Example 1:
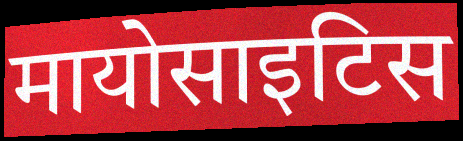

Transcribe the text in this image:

मायोसाइटिस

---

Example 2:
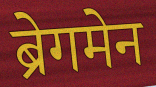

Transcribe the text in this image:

ब्रेगमेन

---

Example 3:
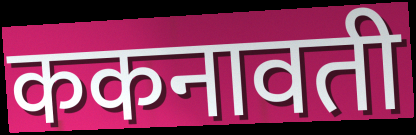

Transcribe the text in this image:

ककनावती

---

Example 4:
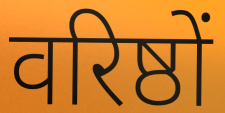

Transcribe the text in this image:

वरिष्ठों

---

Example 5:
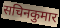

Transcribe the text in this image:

सचिनकुमार